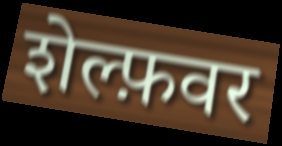
शेल्फ़वर